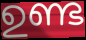
ഉണ്ട